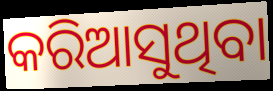
କରିଆସୁଥିବା